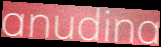
anudina